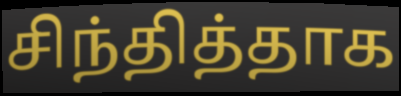
சிந்தித்தாக